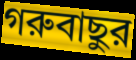
গরুবাছুর